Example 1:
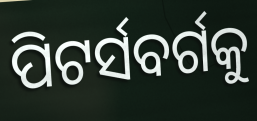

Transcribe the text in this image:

ପିଟର୍ସବର୍ଗକୁ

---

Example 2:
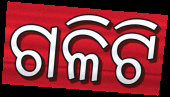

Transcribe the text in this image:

ଗଳିଟି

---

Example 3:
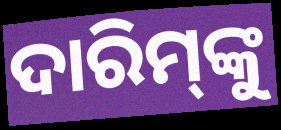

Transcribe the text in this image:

ଦାରିମ୍‍ଙ୍କୁ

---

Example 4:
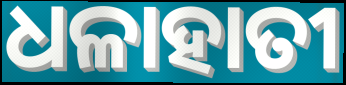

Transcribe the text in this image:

ଧଳାହାତୀ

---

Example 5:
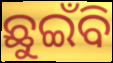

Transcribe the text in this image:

ଛୁଇଁବି